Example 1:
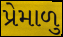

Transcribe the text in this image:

પ્રેમાળુ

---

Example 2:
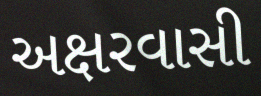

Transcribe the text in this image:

અક્ષરવાસી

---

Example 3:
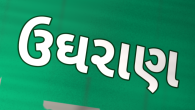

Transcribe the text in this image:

ઉઘરાણ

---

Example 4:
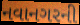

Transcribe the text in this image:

નવાનગરની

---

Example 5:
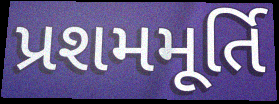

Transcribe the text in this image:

પ્રશમમૂર્તિ